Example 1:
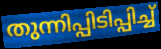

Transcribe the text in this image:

തുന്നിപ്പിടിപ്പിച്ച്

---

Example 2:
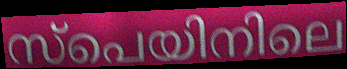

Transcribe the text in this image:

സ്പെയിനിലെ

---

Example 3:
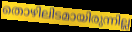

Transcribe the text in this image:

തൊഴിലിടമായിരുന്നില്ല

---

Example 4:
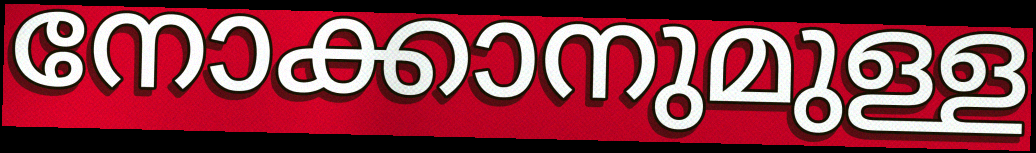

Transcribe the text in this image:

നോക്കാനുമുള്ള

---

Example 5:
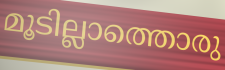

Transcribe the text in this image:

മൂടില്ലാത്തൊരു